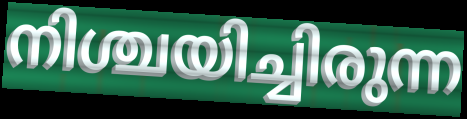
നിശ്ചയിച്ചിരുന്ന